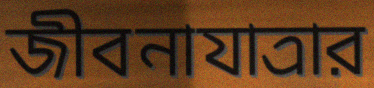
জীবনাযাত্রার